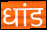
धांड